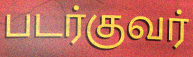
படர்குவர்